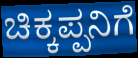
ಚಿಕ್ಕಪ್ಪನಿಗೆ